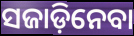
ସଜାଡ଼ିନେବା